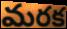
మరక